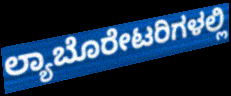
ಲ್ಯಾಬೊರೇಟರಿಗಳಲ್ಲಿ